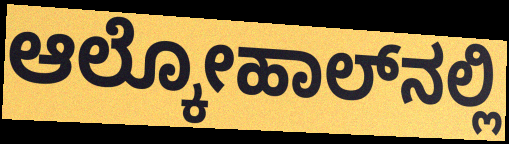
ಆಲ್ಕೋಹಾಲ್‌ನಲ್ಲಿ